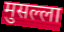
मुसल्ला